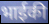
भाईकी